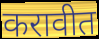
करावीत